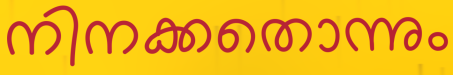
നിനക്കതൊന്നും